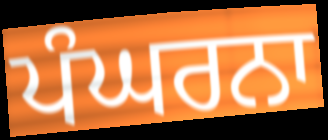
ਪੰਘਰਨਾ